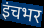
इंचभर